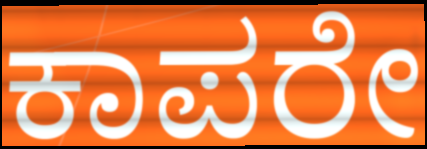
ಕಾಪರೇ